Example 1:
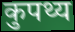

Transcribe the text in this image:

कुपथ्य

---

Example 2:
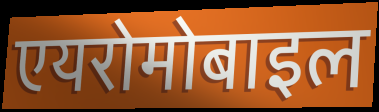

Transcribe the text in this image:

एयरोमोबाइल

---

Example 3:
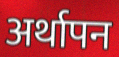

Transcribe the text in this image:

अर्थापन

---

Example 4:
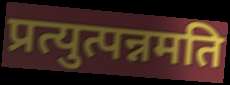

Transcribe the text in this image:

प्रत्युत्पन्नमति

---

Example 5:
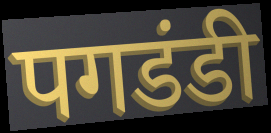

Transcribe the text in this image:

पगडंडी